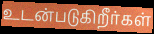
உடன்படுகிறீர்கள்